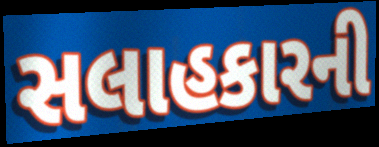
સલાહકારની